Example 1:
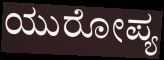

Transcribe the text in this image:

ಯುರೋಪ್ಯ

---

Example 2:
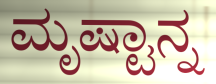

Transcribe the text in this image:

ಮೃಷ್ಟಾನ್ನ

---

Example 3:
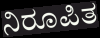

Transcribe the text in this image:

ನಿರೂಪಿತ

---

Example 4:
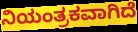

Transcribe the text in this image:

ನಿಯಂತ್ರಕವಾಗಿದೆ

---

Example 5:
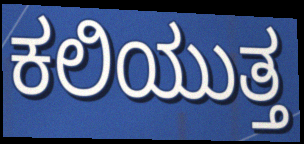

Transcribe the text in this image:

ಕಲಿಯುತ್ತ